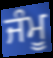
ਜੰਮੂ